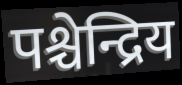
पश्चेन्द्रिय